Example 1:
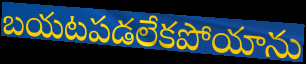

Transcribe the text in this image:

బయటపడలేకపోయాను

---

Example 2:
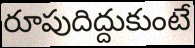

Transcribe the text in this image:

రూపుదిద్దుకుంటే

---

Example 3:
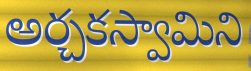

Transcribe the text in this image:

అర్చకస్వామిని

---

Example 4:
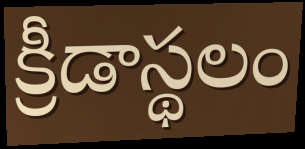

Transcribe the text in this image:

క్రీడాస్థలం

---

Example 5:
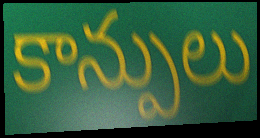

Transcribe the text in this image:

కాన్పులు